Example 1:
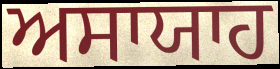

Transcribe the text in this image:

ਅਸਾਯਾਹ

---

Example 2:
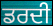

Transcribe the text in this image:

ਡਰਦੀ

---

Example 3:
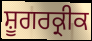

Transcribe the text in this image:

ਸ਼ੂਗਰਕ੍ਰੀਕ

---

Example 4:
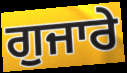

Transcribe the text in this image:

ਗੁਜਾਰੇ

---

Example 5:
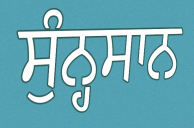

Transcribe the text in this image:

ਸੁੰਨ੍ਹਸਾਨ